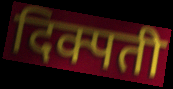
दिक्पती